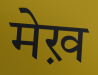
मेख़